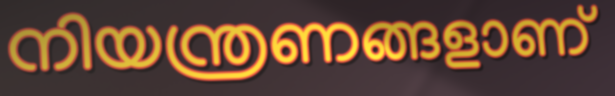
നിയന്ത്രണങ്ങളാണ്